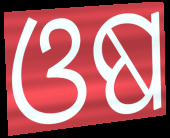
ଓଷ